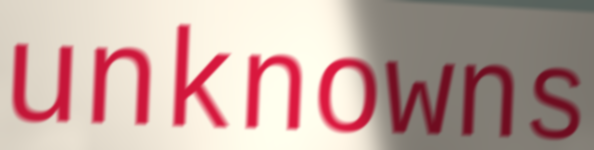
unknowns